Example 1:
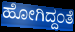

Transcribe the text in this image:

ಹೋಗಿದ್ದಂತೆ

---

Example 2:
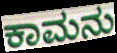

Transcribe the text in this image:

ಕಾಮನು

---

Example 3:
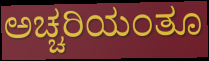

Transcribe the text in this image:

ಅಚ್ಚರಿಯಂತೂ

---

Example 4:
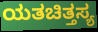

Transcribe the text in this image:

ಯತಚಿತ್ತಸ್ಯ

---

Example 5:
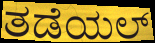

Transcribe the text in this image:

ತಡೆಯಲ್